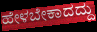
ಹೇಳಬೇಕಾದದ್ದು